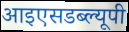
आइएसडब्ल्यूपी